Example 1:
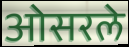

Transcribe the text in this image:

ओसरले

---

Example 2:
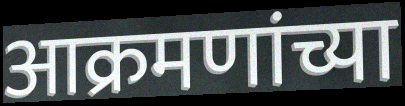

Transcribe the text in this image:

आक्रमणांच्या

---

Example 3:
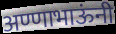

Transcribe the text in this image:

अण्णाभाऊंनी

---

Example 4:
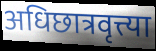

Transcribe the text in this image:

अधिछात्रवृत्त्या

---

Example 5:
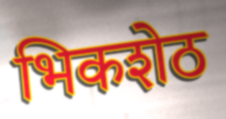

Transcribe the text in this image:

भिकशेठ